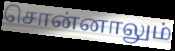
சொன்னாலும்